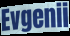
Evgenii